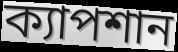
ক্যাপশান